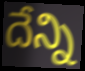
దేన్ని